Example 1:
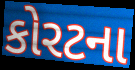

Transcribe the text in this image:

કોરટના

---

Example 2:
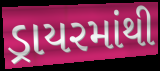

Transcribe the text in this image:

ડ્રાયરમાંથી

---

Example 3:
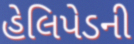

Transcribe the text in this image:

હેલિપેડની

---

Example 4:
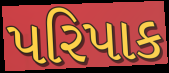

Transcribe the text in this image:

પરિપાક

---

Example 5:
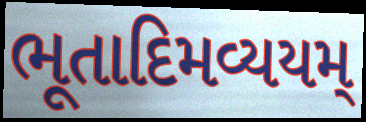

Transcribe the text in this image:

ભૂતાદિમવ્યયમ્